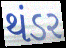
થંડર